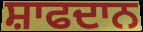
ਸ਼ਾਫਦਾਨ